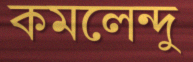
কমলেন্দু